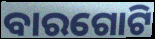
ବାରଗୋଟି